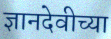
ज्ञानदेवीच्या